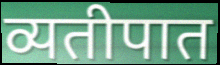
व्यतीपात